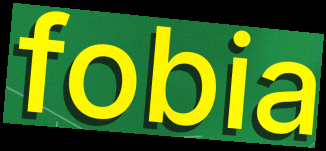
fobia